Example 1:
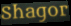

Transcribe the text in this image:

Shagor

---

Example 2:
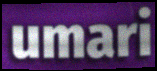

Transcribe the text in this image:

umari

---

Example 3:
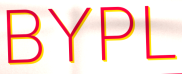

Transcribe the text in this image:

BYPL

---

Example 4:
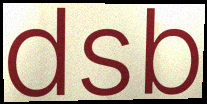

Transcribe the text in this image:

dsb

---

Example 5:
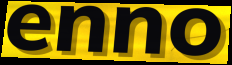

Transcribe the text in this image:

enno